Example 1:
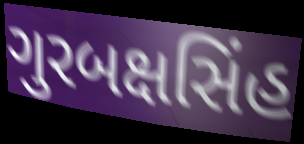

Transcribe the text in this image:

ગુરબક્ષસિંહ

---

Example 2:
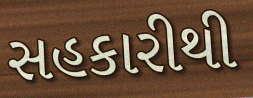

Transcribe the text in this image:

સહકારીથી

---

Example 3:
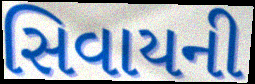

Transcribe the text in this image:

સિવાયની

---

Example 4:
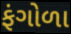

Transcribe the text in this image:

ફંગોળા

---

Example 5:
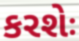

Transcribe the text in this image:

કરશેઃ